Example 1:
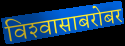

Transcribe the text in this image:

विश्वासाबरोबर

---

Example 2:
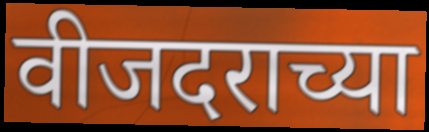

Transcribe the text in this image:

वीजदराच्या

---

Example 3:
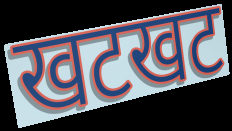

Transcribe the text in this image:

खटखट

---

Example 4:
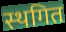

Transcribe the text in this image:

स्थगित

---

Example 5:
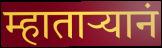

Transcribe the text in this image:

म्हातार्‍यानं